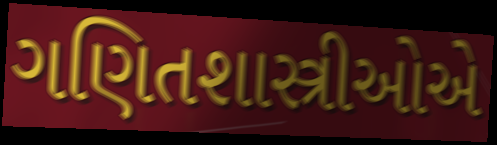
ગણિતશાસ્ત્રીઓએ